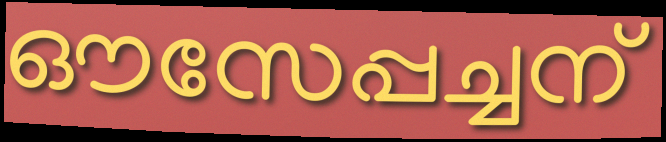
ഔസേപ്പച്ചന്